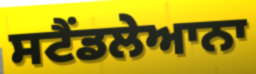
ਸਟੈਂਡਲੇਆਨਾ